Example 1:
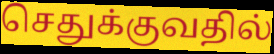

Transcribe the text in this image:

செதுக்குவதில்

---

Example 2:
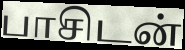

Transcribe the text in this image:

பாசிடன்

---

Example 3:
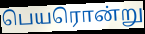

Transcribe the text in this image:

பெயரொன்று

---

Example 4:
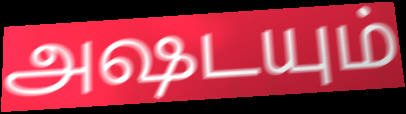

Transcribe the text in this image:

அஷடயும்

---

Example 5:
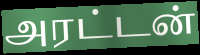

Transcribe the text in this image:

அரட்டன்